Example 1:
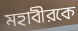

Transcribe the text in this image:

মহাবীরকে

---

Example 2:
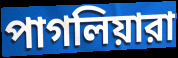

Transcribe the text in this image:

পাগলিয়ারা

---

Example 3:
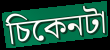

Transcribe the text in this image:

চিকেনটা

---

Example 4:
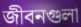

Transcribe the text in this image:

জীবনগুলা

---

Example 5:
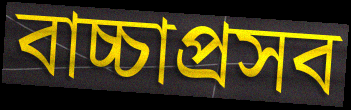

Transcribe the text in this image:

বাচ্চাপ্রসব